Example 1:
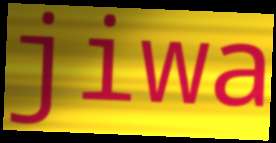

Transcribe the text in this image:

jiwa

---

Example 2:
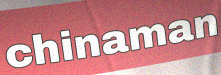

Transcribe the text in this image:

chinaman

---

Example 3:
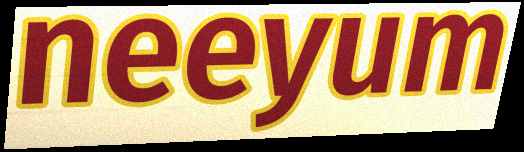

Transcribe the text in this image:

neeyum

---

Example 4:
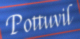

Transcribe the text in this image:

Pottuvil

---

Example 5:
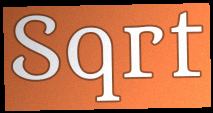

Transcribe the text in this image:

Sqrt